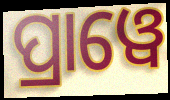
ପ୍ରାୱେ